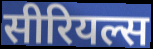
सीरियल्स